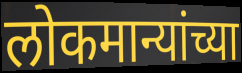
लोकमान्यांच्या